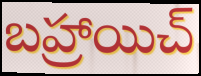
బహ్రాయిచ్